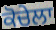
ਕੋਚੇਲਾ